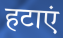
हटाएं